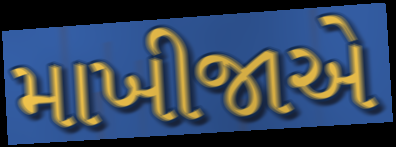
માખીજાએ